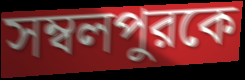
সম্বলপুরকে